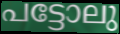
പട്ടോലു